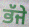
ਭੱਜੇ